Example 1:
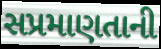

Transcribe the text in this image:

સપ્રમાણતાની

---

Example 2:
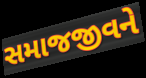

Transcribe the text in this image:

સમાજજીવને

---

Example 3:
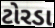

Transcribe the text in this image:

ટોરડા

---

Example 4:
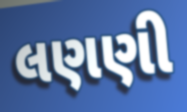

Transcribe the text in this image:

લણણી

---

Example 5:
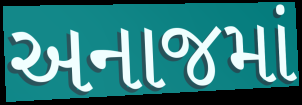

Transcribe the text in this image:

અનાજમાં